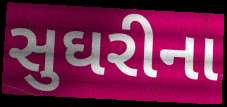
સુઘરીના